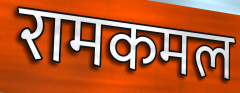
रामकमल